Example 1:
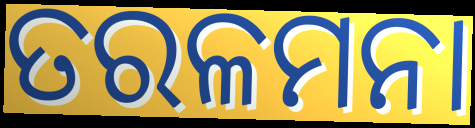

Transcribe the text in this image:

ତରଳମନା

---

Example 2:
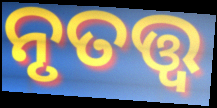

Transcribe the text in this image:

ନୃତତ୍ତ୍ୱ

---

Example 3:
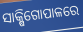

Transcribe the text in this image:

ସାକ୍ଷିଗୋପାଳରେ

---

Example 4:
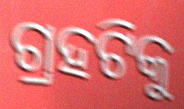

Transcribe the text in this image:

ଗ୍ରହଟିକୁ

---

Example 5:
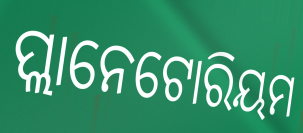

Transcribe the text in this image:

ପ୍ଲାନେଟୋରିୟମ